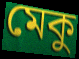
মেকু